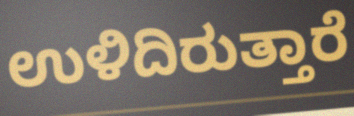
ಉಳಿದಿರುತ್ತಾರೆ